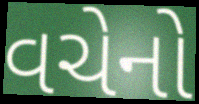
વચેનો